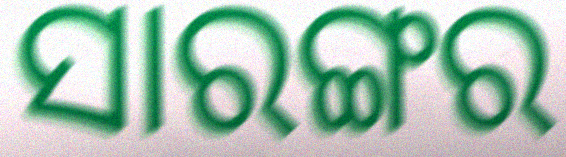
ସାରଙ୍ଗର